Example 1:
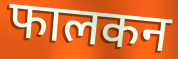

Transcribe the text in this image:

फालकन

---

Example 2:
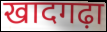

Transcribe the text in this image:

खादगढ़ा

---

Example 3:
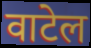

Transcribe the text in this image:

वाटेल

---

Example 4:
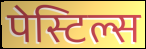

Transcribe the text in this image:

पेस्टिल्स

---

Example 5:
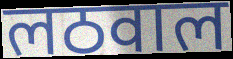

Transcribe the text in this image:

लठवाल